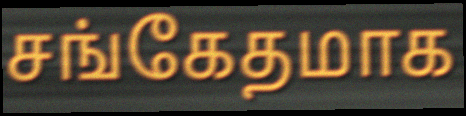
சங்கேதமாக